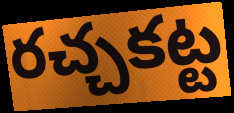
రచ్చకట్ట